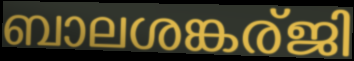
ബാലശങ്കര്ജി